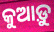
କୁଆଡ଼ୁ